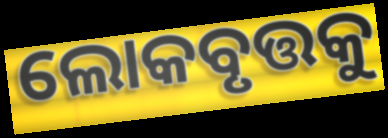
ଲୋକବୃତ୍ତକୁ